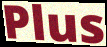
Plus